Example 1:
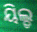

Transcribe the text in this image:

ୟିଲ୍ଡ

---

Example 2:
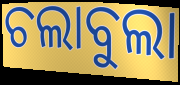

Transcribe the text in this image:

ଚଲାବୁଲା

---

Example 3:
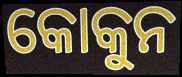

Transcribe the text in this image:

କୋକୁନ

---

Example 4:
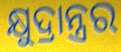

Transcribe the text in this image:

କ୍ଷୁଦ୍ରାନ୍ତ୍ରର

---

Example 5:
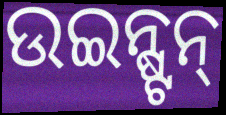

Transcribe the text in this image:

ଉଇନ୍ଷ୍ଟନ୍